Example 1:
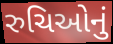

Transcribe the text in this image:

રુચિઓનું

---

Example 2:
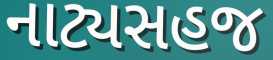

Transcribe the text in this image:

નાટ્યસહજ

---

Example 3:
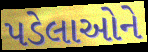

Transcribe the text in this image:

પડેલાઓને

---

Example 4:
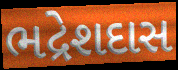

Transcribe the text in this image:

ભદ્રેશદાસ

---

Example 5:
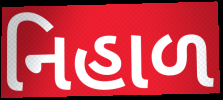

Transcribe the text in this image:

નિહાળ